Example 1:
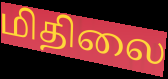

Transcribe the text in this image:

மிதிலை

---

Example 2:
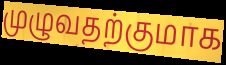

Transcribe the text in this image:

முழுவதற்குமாக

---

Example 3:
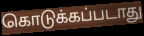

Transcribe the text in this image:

கொடுக்கப்படாது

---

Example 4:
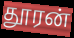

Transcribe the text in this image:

தூரன்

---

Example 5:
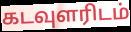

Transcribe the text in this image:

கடவுளரிடம்